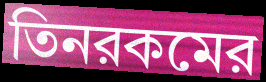
তিনরকমের